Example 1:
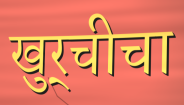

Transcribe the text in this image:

खुर्चीचा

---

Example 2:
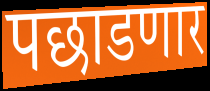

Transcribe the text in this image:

पछाडणार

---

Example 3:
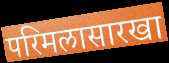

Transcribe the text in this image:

परिमलासारखा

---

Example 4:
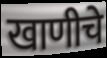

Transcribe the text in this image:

खाणीचे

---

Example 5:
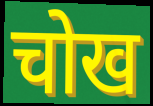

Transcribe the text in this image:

चोख